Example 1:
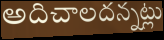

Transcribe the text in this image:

అదిచాలదన్నట్లు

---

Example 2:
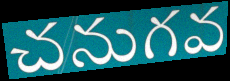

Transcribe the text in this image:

చనుగవ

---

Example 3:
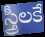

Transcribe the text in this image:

స్త్రీలకే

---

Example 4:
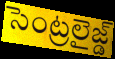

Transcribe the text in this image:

సెంట్రలైజ్డ్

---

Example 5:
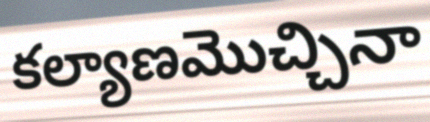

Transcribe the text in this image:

కల్యాణమొచ్చినా